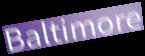
Baltimore